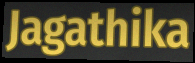
Jagathika